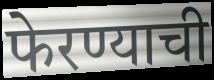
फेरण्याची